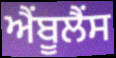
ਐੰਬੂਲੈੰਸ